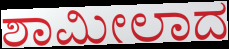
ಶಾಮೀಲಾದ